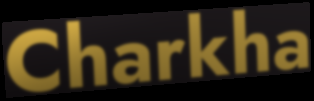
Charkha